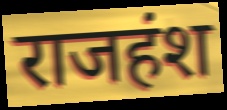
राजहंश